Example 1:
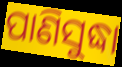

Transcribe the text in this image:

ପାଣିସୁଦ୍ଧା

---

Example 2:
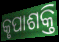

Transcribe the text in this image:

କୃପାଶକ୍ତି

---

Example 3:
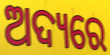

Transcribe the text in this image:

ଅଦ୍ୟରେ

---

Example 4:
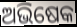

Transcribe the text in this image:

ଅଭିଷେକ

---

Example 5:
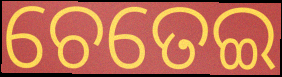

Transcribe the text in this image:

ଚେତେଇ